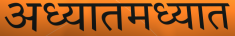
अध्यातमध्यात